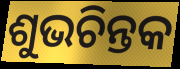
ଶୁଭଚିନ୍ତକ